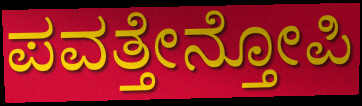
ಪವತ್ತೇನ್ತೋಪಿ